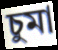
চুমা